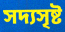
সদ্যসৃষ্ট